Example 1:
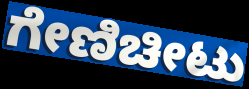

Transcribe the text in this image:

ಗೇಣಿಚೀಟು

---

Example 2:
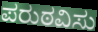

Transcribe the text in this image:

ಪರುಠವಿಸು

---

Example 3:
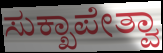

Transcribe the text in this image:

ಸುಕ್ಖಾಪೇತ್ವಾ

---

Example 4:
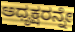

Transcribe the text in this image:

ಅಧ್ಯಕ್ಷರನ್ನೇ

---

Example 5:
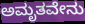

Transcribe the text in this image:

ಅಮೃತವೇನು